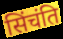
सिंचंति